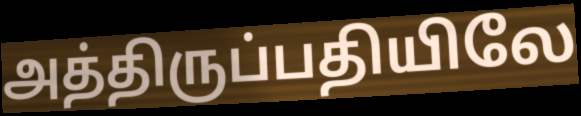
அத்திருப்பதியிலே